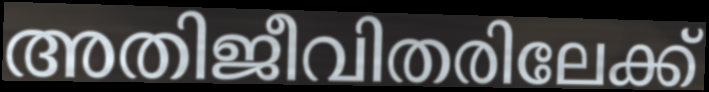
അതിജീവിതരിലേക്ക്